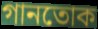
গানতোক